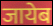
जायेब